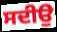
ਸਦੀਉ